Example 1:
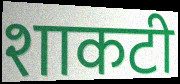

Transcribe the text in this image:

शाकटी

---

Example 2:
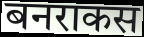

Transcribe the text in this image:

बनराकस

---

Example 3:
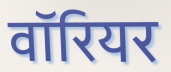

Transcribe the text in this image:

वॉरियर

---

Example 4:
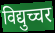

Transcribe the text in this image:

विद्युच्चर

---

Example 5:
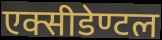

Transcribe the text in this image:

एक्सीडेण्टल